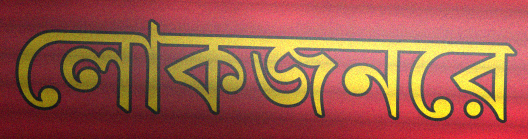
লোকজনরে